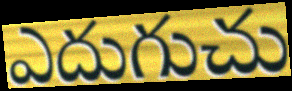
ఎదుగుచు